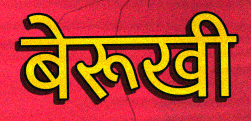
बेरूखी